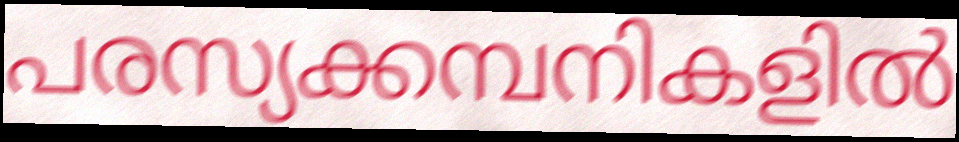
പരസ്യക്കമ്പനികളിൽ